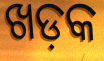
ଖଡ଼କ